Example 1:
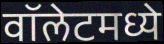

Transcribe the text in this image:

वॉलेटमध्ये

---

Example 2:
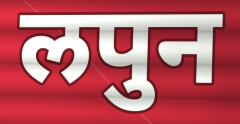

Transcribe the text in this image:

लपुन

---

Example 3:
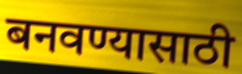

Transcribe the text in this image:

बनवण्यासाठी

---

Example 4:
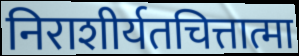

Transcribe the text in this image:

निराशीर्यतचित्तात्मा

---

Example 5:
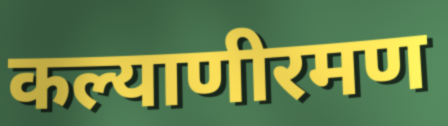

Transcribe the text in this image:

कल्याणीरमण